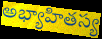
అభ్యాహితస్య